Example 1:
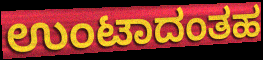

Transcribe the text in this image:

ಉಂಟಾದಂತಹ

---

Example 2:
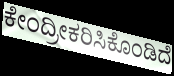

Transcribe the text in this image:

ಕೇಂದ್ರೀಕರಿಸಿಕೊಂಡಿದೆ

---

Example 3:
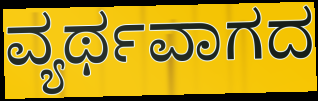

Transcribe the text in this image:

ವ್ಯರ್ಥವಾಗದ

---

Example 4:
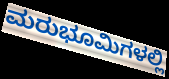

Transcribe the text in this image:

ಮರುಭೂಮಿಗಳಲ್ಲಿ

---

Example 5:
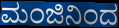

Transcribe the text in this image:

ಮಂಜಿನಿಂದ